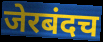
जेरबंदच